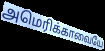
அமெரிக்காவையே